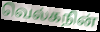
வெல்கநின்